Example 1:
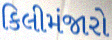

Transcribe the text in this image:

કિલીમંજારો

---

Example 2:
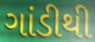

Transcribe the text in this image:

ગાંડીથી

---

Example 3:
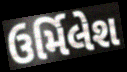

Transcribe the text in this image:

ઉર્મિલેશ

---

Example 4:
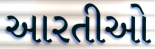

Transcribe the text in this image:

આરતીઓ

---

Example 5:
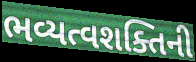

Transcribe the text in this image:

ભવ્યત્વશક્તિની